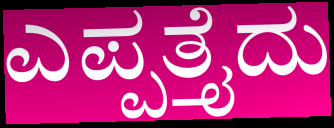
ಎಪ್ಪತ್ತೈದು